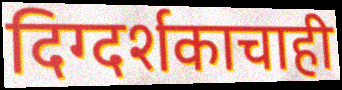
दिग्दर्शकाचाही